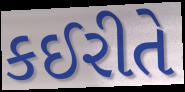
કઈરીતે